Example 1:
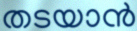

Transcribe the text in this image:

തടയാൻ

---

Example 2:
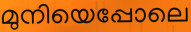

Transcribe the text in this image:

മുനിയെപ്പോലെ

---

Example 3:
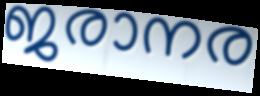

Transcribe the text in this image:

ജരാനര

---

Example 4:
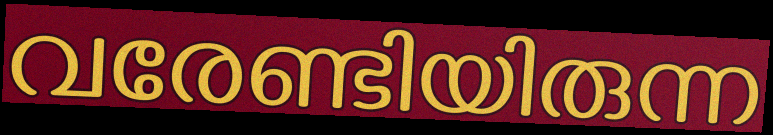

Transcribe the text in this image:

വരേണ്ടിയിരുന്ന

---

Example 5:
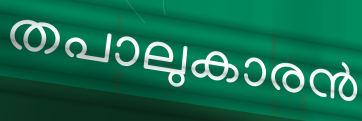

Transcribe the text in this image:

തപാലുകാരൻ